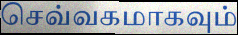
செவ்வகமாகவும்